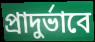
প্রাদুর্ভাবে